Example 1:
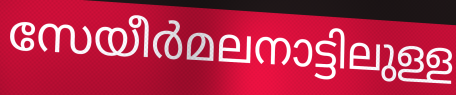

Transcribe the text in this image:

സേയീർമലനാട്ടിലുള്ള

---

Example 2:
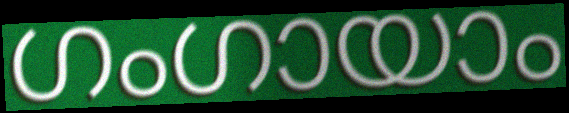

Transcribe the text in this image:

ഗംഗായാം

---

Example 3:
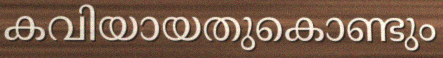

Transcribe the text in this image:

കവിയായതുകൊണ്ടും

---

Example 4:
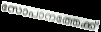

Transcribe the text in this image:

സോപാനത്തേക്ക്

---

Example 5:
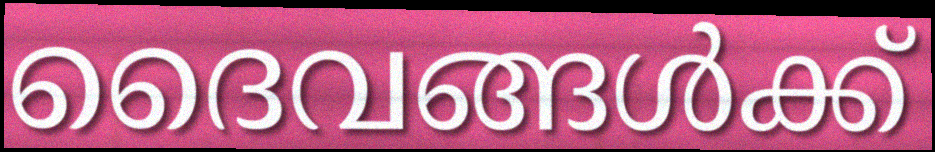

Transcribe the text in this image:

ദൈവങ്ങൾക്ക്